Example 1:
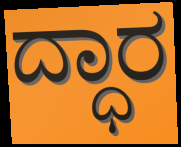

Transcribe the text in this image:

ದ್ಧಾರ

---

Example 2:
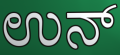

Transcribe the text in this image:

ಉನ್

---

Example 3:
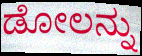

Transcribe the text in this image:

ಡೋಲನ್ನು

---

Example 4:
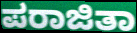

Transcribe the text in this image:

ಪರಾಜಿತಾ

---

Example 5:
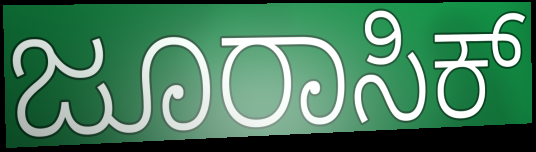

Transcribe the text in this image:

ಜೂರಾಸಿಕ್